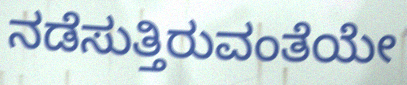
ನಡೆಸುತ್ತಿರುವಂತೆಯೇ